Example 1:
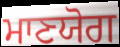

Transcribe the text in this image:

ਮਾਣਯੋਗ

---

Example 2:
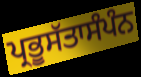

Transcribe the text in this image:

ਪ੍ਰਭੂਸੱਤਾਸੰਪੰਨ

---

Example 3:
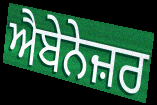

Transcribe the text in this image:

ਐਬੇਨੇਜ਼ਰ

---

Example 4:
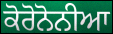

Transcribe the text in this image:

ਕੋਰੋਨੋਨੀਆ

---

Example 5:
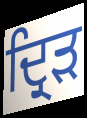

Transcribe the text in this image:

ਦ੍ਰਿੜ